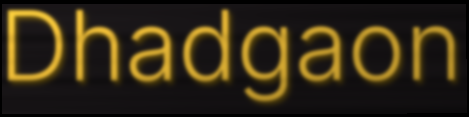
Dhadgaon